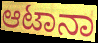
ಆಟಾನಾ